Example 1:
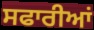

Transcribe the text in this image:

ਸਫਾਰੀਆਂ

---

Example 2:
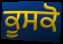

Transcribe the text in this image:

ਕੂਸਕੋ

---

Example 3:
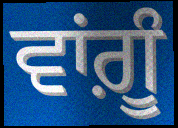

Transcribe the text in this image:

ਵਾਂਗ਼ੂੰ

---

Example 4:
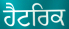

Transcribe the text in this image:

ਹੈਟਰਿਕ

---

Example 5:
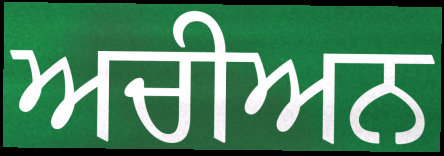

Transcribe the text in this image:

ਅਚੀਅਨ